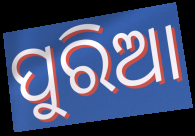
ପୁରିଆ